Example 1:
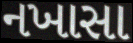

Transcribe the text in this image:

નખાસા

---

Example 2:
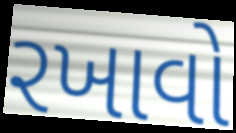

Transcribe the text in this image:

રખાવો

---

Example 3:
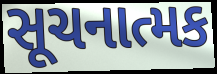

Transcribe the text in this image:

સૂચનાત્મક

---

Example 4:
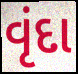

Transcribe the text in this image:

વૃંદા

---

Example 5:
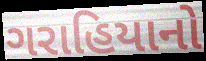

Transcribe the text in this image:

ગરાહિયાનો